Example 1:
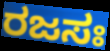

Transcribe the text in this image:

ರಜಸಃ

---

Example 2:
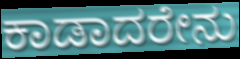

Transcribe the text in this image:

ಕಾಡಾದರೇನು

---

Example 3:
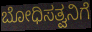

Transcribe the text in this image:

ಬೋಧಿಸತ್ವನಿಗೆ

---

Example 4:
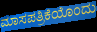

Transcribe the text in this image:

ಮಾಸಪತ್ರಿಕೆಯೊಂದು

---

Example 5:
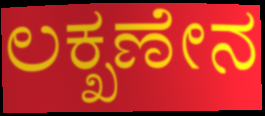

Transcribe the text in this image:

ಲಕ್ಖಣೇನ